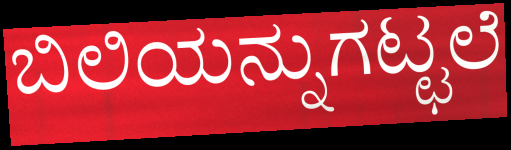
ಬಿಲಿಯನ್ನುಗಟ್ಟಲೆ